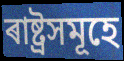
ৰাষ্ট্ৰসমূহে